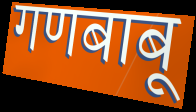
गणबाबू